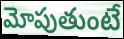
మోపుతుంటే